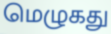
மெழுகது